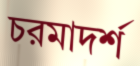
চরমাদর্শ